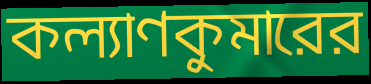
কল্যাণকুমারের